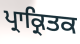
ਪ੍ਰਾਕ੍ਰਿਤਕ